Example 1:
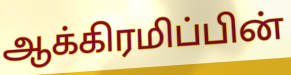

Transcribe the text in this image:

ஆக்கிரமிப்பின்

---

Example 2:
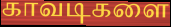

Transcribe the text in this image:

காவடிகளை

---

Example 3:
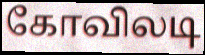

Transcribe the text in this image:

கோவிலடி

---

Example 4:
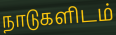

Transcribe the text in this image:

நாடுகளிடம்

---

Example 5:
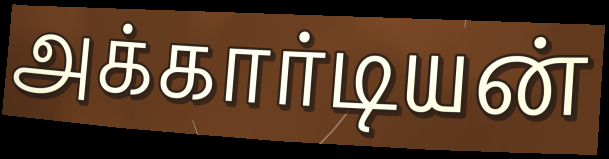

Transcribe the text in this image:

அக்கார்டியன்